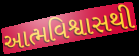
આત્મવિશ્વાસથી